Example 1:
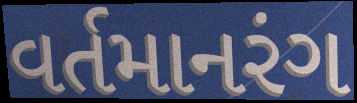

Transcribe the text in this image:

વર્તમાનરંગ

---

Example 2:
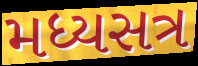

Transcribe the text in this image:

મધ્યસત્ર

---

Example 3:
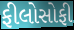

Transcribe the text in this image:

ફીલોસોફી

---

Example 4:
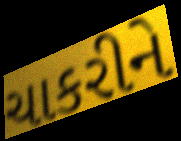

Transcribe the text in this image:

ચાકરીને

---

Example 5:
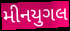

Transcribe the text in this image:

મીનયુગલ